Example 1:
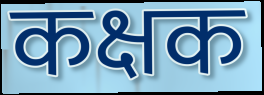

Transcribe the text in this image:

कक्षक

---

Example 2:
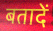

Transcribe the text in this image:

बतादें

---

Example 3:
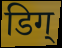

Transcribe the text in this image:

डिग्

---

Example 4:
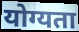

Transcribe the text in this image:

योग्यता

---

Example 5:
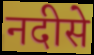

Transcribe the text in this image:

नदीसे